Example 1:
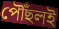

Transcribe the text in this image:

পৌঁছলই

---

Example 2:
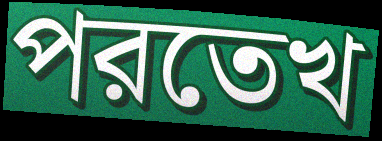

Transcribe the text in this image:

পরতেখ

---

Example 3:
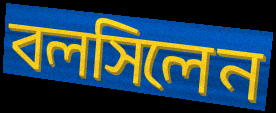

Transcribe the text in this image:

বলসিলেন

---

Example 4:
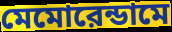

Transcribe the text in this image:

মেমোরেন্ডামে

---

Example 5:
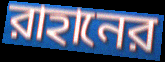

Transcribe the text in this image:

রাহানের